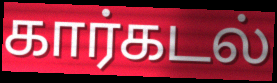
கார்கடல்